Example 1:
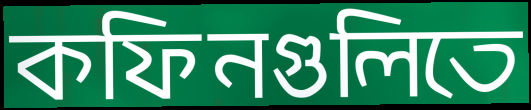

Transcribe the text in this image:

কফিনগুলিতে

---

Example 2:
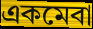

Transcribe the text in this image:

একমেবা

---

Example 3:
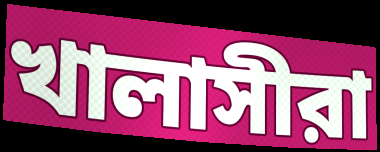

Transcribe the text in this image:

খালাসীরা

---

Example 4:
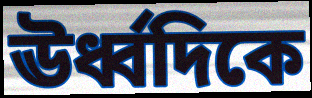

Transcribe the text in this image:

ঊর্ধ্বদিকে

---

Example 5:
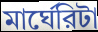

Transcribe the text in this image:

মার্ঘেরিটা